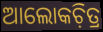
ଆଲୋକଚ଼ିତ୍ର